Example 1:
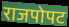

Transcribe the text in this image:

राजपोपट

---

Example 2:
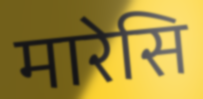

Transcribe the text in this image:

मारेसि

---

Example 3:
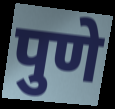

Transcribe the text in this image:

पुणे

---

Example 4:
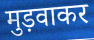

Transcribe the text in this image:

मुड़वाकर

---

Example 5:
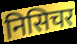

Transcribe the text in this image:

निसिचर